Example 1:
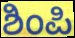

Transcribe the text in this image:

ಶಿಂಪಿ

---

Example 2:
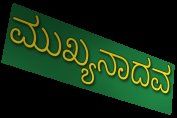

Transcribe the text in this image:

ಮುಖ್ಯನಾದವ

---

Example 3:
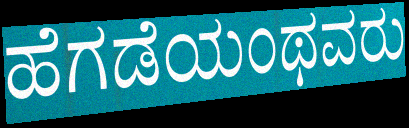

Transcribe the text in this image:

ಹೆಗಡೆಯಂಥವರು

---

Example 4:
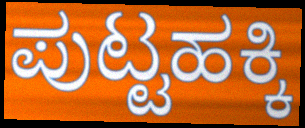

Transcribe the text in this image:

ಪುಟ್ಟಹಕ್ಕಿ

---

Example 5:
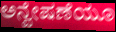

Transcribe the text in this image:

ಅನ್ವೇಷಣೆಯೂ